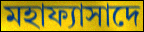
মহাফ্যাসাদে